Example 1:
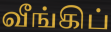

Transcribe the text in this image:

வீங்கிப்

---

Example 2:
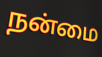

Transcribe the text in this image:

நன்மை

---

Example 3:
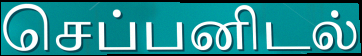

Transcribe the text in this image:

செப்பனிடல்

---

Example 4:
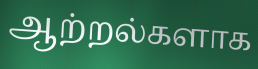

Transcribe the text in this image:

ஆற்றல்களாக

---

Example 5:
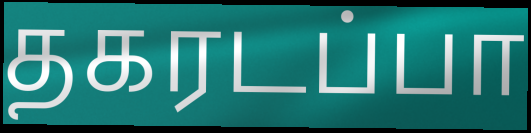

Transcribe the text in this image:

தகரடப்பா